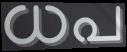
ധപ